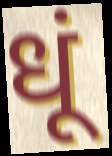
धूं